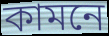
কামনে